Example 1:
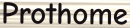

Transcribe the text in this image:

Prothome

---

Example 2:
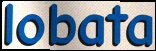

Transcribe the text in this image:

lobata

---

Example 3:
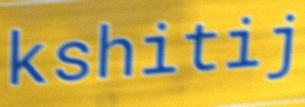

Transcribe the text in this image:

kshitij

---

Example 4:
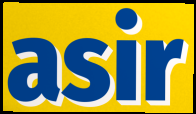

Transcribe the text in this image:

asir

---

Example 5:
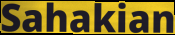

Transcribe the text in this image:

Sahakian